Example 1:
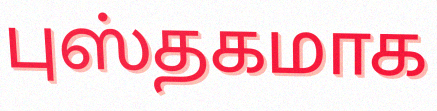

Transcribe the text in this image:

புஸ்தகமாக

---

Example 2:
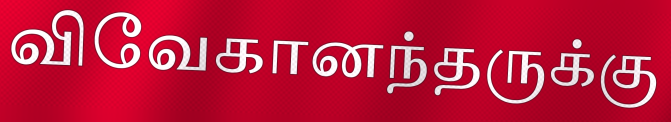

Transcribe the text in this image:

விவேகானந்தருக்கு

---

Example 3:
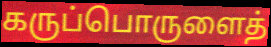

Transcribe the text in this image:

கருப்பொருளைத்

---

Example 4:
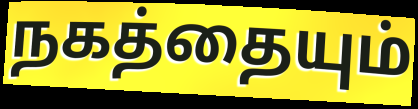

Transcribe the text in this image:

நகத்தையும்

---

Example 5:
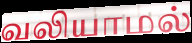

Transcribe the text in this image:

வலியாமல்